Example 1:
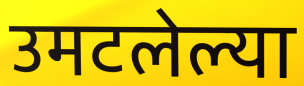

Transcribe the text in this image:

उमटलेल्या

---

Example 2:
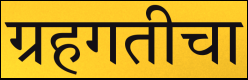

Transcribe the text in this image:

ग्रहगतीचा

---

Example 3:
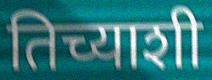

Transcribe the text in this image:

तिच्याशी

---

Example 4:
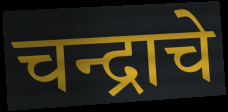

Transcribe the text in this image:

चन्द्राचे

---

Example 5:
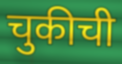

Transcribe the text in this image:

चुकीची